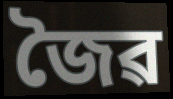
জৈৱ